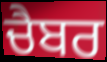
ਚੈਬਰ